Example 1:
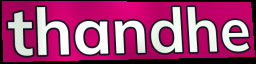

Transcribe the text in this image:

thandhe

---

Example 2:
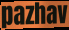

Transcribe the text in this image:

pazhav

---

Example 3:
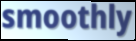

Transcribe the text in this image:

smoothly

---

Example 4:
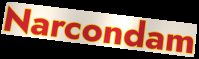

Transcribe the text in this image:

Narcondam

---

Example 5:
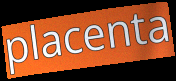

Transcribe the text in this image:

placenta